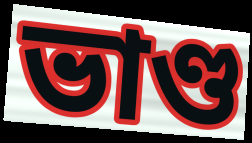
ভাণ্ড